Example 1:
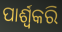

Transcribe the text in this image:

ପାର୍ଶ୍ଵକରି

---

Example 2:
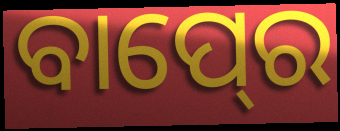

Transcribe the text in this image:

ବାପ୍‍ରେ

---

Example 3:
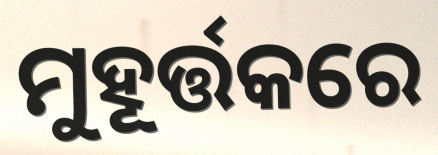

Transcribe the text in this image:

ମୁହୂର୍ତ୍ତକରେ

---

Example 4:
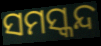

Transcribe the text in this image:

ସମସ୍କନ୍ଦ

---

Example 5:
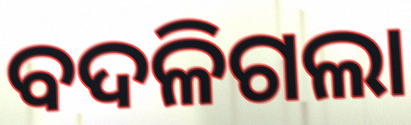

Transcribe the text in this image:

ବଦଳିଗଲା